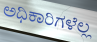
ಅಧಿಕಾರಿಗಳೆಲ್ಲ